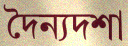
দৈন্যদশা